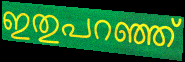
ഇതുപറഞ്ഞ്